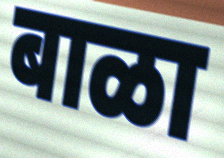
बाळा